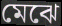
মেঝে